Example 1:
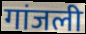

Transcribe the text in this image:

गांजली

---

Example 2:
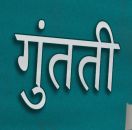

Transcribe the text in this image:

गुंतती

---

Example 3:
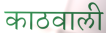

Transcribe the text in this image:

काठवाली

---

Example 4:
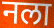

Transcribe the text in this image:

नला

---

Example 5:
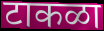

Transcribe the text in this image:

टाकळा